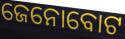
ଜେନୋବୋଟ